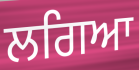
ਲਗਿਆ